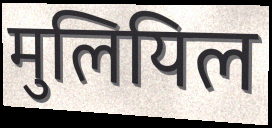
मुलियिल